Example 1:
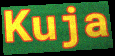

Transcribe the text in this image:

Kuja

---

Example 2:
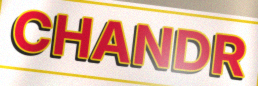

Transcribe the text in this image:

CHANDR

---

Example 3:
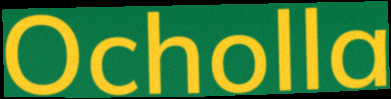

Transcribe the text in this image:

Ocholla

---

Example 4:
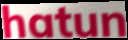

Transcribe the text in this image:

hatun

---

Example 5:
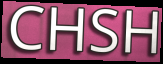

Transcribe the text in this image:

CHSH